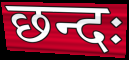
छन्दः